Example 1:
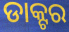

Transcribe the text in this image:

ଡାକ୍ଟର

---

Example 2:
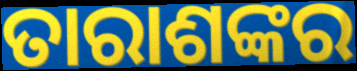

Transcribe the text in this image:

ତାରାଶଙ୍କର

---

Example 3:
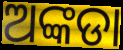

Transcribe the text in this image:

ଅଙ୍କଡା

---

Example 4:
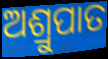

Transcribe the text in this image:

ଅଶ୍ରୁପାତ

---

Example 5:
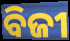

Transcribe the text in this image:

ବିଜୀ